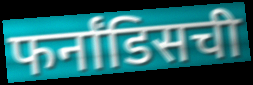
फर्नांडिसची